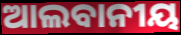
ଆଲବାନୀୟ